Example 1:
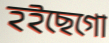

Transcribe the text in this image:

হইছেগো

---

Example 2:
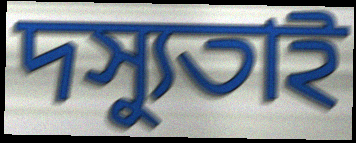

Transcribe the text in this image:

দস্যুতাই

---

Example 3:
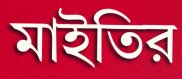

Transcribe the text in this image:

মাইতির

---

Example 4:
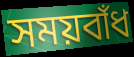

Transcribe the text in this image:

সময়বাঁধ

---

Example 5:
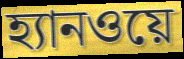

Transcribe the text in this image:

হ্যানওয়ে